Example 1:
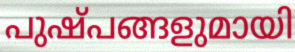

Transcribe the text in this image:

പുഷ്പങ്ങളുമായി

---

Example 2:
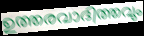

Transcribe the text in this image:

ഉത്തരവാദിത്തവും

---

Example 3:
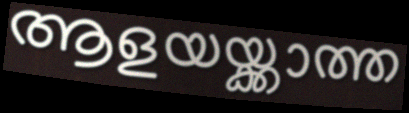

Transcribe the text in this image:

ആളയയ്ക്കാത്ത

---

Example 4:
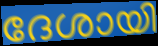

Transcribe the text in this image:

ദേശായി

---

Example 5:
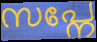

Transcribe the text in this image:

സപ്നേ